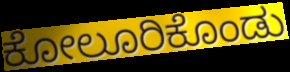
ಕೋಲೂರಿಕೊಂಡು